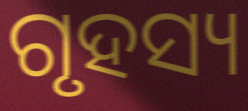
ଗୃହସ୍ୟ